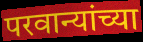
परवान्यांच्या